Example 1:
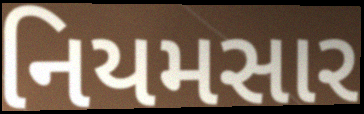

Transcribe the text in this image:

નિયમસાર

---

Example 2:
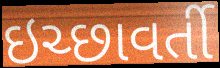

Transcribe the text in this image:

ઇચ્છાવર્તી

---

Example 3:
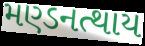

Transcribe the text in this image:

મણ્ડનત્થાય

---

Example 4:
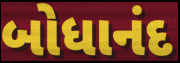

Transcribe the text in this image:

બોધાનંદ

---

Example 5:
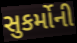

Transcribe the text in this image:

સુકર્મોની